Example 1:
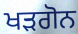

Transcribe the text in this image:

ਖੜਗੋਨ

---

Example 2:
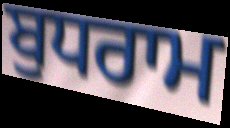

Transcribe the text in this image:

ਬੁਧਰਾਮ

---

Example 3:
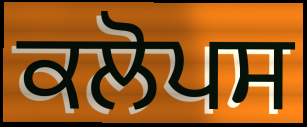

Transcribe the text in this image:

ਕਲੋਪਸ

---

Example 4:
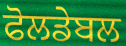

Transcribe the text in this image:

ਫੋਲਡੇਬਲ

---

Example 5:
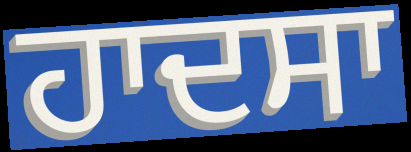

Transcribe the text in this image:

ਹਾਦਸਾ